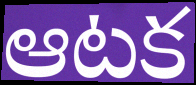
ఆటక